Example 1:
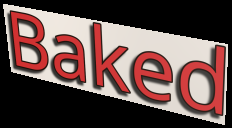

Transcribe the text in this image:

Baked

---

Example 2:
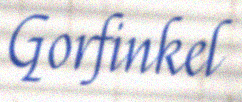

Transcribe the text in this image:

Gorfinkel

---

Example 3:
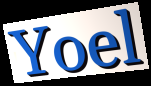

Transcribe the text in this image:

Yoel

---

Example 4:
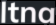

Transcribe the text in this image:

Itna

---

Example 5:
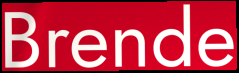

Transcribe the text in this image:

Brende